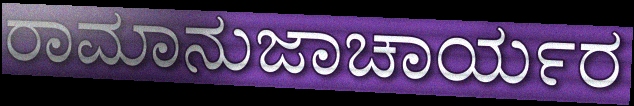
ರಾಮಾನುಜಾಚಾರ್ಯರ